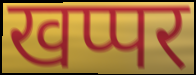
खप्पर